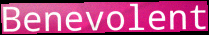
Benevolent